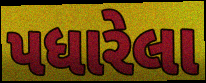
પધારેલા